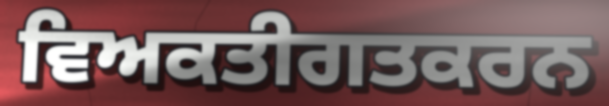
ਵਿਅਕਤੀਗਤਕਰਨ